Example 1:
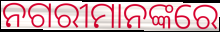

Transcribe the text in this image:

ନଗରୀମାନଙ୍କରେ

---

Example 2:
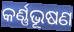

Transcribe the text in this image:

କର୍ଣ୍ଣଭୂଷଣ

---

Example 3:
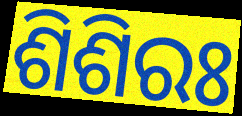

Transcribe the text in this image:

ଶିଶିରଃ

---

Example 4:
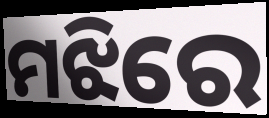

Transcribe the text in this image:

ମଝିରେ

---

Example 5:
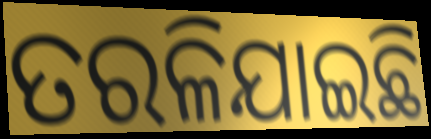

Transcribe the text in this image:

ତରଳିଯାଇଛି